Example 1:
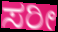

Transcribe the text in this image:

ಸರೀ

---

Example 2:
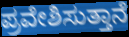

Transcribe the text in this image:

ಪ್ರವೇಶಿಸುತ್ತಾನೆ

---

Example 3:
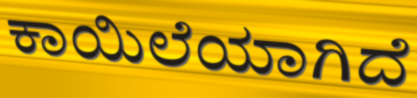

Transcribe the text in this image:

ಕಾಯಿಲೆಯಾಗಿದೆ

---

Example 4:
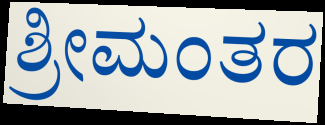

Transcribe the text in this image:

ಶ್ರೀಮಂತರ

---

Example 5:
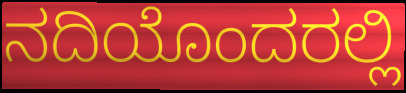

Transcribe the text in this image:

ನದಿಯೊಂದರಲ್ಲಿ